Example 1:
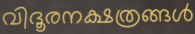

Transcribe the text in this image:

വിദൂരനക്ഷത്രങ്ങൾ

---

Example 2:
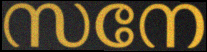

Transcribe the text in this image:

സനേ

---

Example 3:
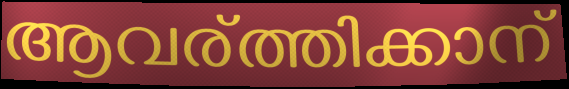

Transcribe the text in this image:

ആവര്ത്തിക്കാന്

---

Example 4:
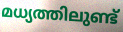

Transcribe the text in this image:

മധ്യത്തിലുണ്ട്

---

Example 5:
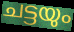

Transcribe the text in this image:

ചട്ടയും